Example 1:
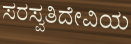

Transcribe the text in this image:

ಸರಸ್ವತಿದೇವಿಯ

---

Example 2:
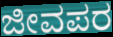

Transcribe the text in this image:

ಜೀವಪರ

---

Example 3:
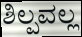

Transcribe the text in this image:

ಶಿಲ್ಪವಲ್ಲ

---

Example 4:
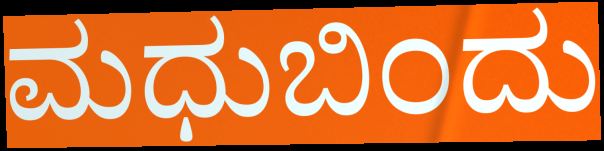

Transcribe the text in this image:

ಮಧುಬಿಂದು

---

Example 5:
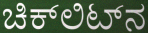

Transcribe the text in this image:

ಚಿಕ್‌ಲಿಟ್‌ನ